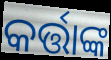
କର୍ତ୍ତାଙ୍କ